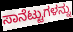
ಸಾನೆಟ್ಟುಗಳನ್ನು